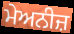
ਮੇਅਨੀਜ਼